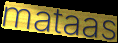
mataas